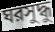
ঘরসুদ্ধু